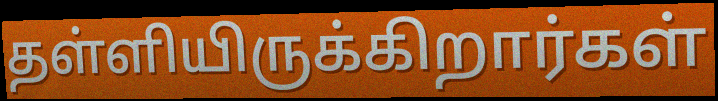
தள்ளியிருக்கிறார்கள்